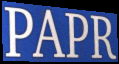
PAPR